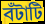
বঁটাটি